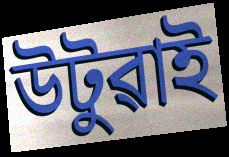
উটুৱাই